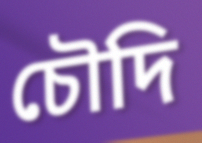
চৌদি